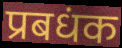
प्रबधंक